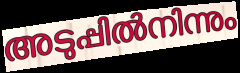
അടുപ്പിൽനിന്നും